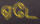
ஏடே